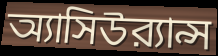
অ্যাসিউর‍্যান্স